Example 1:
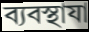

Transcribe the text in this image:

ব্যবস্থাযা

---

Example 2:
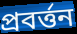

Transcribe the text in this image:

প্রবর্ত্তন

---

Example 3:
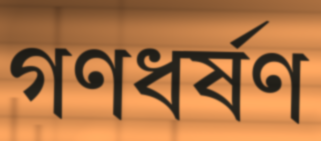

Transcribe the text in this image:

গণধর্ষণ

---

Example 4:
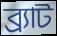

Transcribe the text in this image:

ব্র্যাট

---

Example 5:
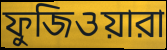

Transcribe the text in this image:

ফুজিওয়ারা